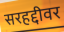
सरहद्दीवर